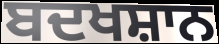
ਬਦਖਸ਼ਾਨ